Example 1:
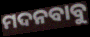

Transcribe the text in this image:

ମଦନବାବୁ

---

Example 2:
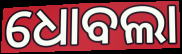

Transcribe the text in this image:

ଧୋବଲା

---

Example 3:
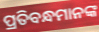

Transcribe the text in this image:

ପ୍ରତିବନ୍ଧମାନଙ୍କ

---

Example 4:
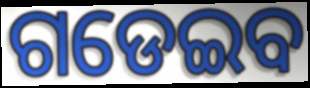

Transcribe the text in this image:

ଗଡେଇବ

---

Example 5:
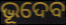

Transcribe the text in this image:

ଭୂଦେବ